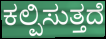
ಕಲ್ಪಿಸುತ್ತದೆ